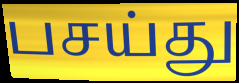
பசய்து